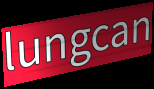
lungcan